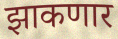
झाकणार